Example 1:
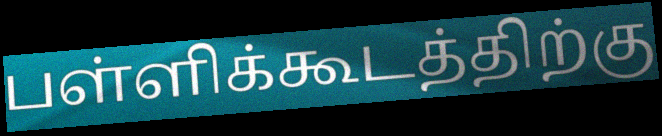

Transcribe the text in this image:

பள்ளிக்கூடத்திற்கு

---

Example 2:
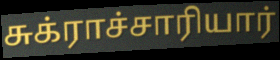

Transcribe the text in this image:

சுக்ராச்சாரியார்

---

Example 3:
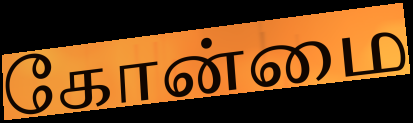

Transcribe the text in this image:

கோன்மை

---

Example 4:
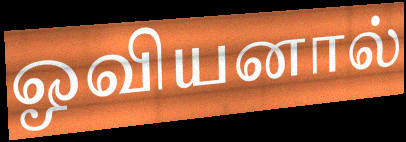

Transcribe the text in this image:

ஓவியனால்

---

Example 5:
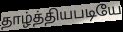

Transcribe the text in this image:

தாழ்த்தியபடியே